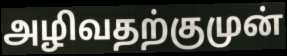
அழிவதற்குமுன்